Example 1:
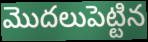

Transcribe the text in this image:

మొదలుపెట్టిన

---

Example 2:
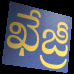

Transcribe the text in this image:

ఖేజ్రీ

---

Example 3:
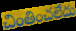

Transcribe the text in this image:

చింతించలేదు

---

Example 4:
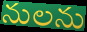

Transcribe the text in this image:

నులను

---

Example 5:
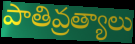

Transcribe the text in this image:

పాతివ్రత్యాలు